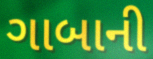
ગાબાની